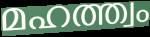
മഹത്ത്വം